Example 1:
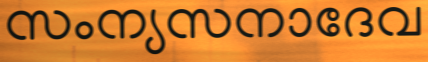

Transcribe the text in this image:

സംന്യസനാദേവ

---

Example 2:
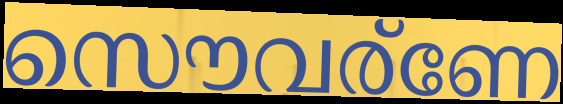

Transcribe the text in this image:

സൌവര്ണേ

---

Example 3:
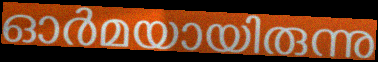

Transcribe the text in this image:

ഓർമയായിരുന്നു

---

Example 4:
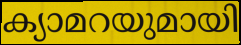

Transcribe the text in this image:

ക്യാമറയുമായി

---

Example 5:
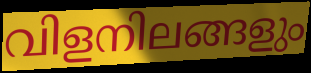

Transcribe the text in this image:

വിളനിലങ്ങളും